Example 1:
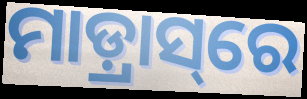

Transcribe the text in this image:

ମାଡ଼୍ରାସ୍‌ରେ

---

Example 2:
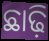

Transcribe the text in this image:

ଛାଢ଼ି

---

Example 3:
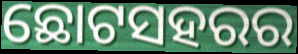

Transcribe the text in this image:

ଛୋଟସହରର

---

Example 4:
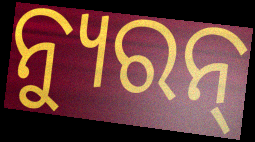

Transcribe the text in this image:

ନ୍ୟୁରନ୍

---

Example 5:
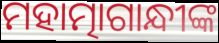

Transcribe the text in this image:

ମହାତ୍ମାଗାନ୍ଧୀଙ୍କ